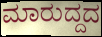
ಮಾರುದ್ದದ